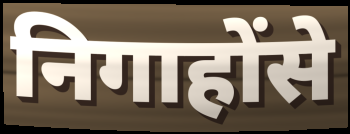
निगाहोंसे